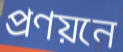
প্ৰণয়নে